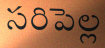
సరిపెల్ల